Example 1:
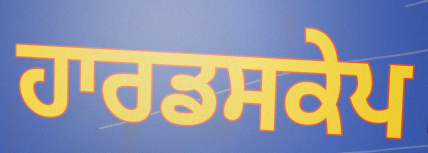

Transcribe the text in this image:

ਹਾਰਡਸਕੇਪ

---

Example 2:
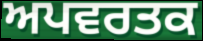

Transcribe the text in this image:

ਅਪਵਰਤਕ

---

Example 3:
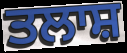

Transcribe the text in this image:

ਤਲਾਸ਼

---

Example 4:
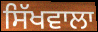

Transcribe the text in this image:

ਸਿੱਖਵਾਲਾ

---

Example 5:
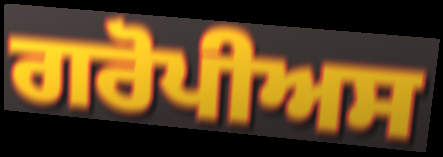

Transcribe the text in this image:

ਗਰੋਪੀਅਸ